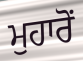
ਮੁਹਾਰੋਂ